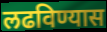
लढविण्यास